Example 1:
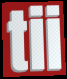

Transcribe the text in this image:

tii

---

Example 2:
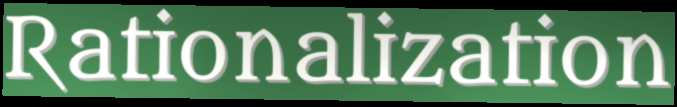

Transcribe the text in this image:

Rationalization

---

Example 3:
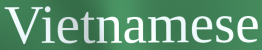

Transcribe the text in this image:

Vietnamese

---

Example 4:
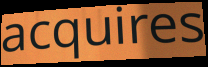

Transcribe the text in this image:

acquires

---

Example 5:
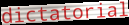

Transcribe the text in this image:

dictatorial